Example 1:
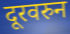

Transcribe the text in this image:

दूरवरुन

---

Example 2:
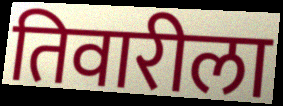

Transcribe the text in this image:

तिवारीला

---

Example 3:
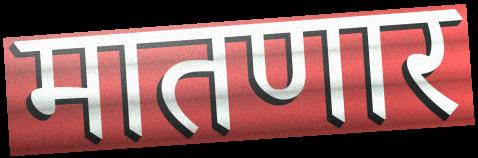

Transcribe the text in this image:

मातणार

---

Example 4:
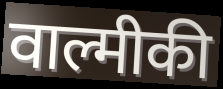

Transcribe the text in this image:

वाल्मीकी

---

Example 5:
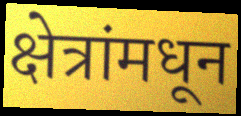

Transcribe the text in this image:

क्षेत्रांमधून